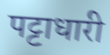
पट्टाधारी